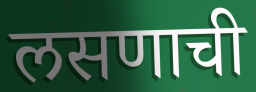
लसणाची